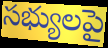
సభ్యులపై